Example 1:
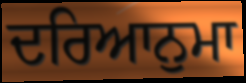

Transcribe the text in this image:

ਦਰਿਆਨੁਮਾ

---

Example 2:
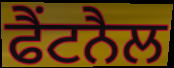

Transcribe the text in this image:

ਫੈਂਟਨੈਲ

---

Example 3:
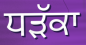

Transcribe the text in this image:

ਧੜੱਕਾ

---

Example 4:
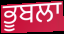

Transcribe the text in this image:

ਭੂਬਲਾ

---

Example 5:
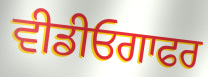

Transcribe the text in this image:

ਵੀਡੀਓਗਾਫਰ